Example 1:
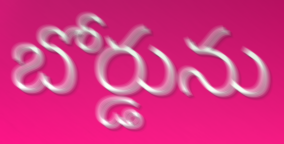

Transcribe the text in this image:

బోర్డును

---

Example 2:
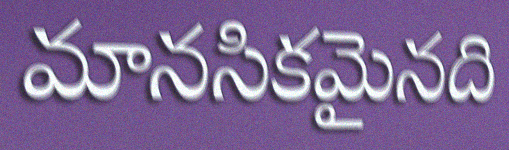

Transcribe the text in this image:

మానసికమైనది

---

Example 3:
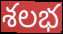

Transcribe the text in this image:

శలభ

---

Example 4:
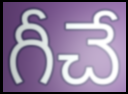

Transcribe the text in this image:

గీచే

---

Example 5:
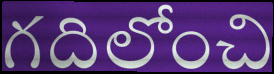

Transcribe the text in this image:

గదిలోంచి